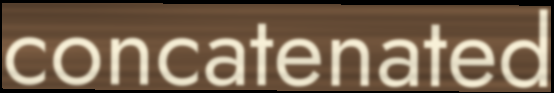
concatenated